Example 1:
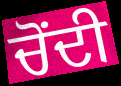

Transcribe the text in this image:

ਚੋੰਦੀ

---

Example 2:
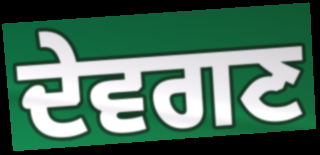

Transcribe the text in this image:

ਦੇਵਗਣ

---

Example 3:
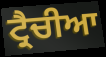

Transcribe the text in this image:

ਟ੍ਰੈਚੀਆ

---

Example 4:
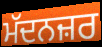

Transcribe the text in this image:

ਮੱਦਨਜ਼ਰ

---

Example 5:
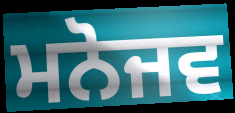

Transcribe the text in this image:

ਮਨੋਜਵ